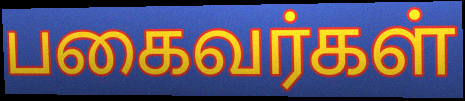
பகைவர்கள்